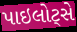
પાઇલોટ્સે